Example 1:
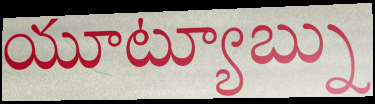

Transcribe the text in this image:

యూట్యూబ్ను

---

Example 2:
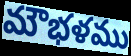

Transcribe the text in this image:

మౌభళము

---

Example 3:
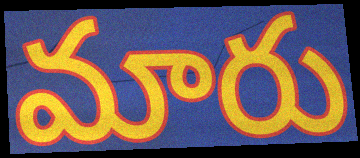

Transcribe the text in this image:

మారు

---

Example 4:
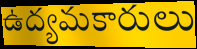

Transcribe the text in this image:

ఉద్యమకారులు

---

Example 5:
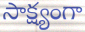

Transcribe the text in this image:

సాక్ష్యంగా